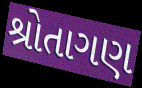
શ્રોતાગણ